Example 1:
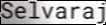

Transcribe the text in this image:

Selvaraj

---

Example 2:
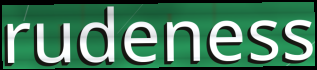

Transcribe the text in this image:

rudeness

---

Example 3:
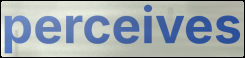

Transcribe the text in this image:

perceives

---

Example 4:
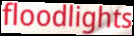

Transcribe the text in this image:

floodlights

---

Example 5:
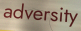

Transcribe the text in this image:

adversity